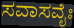
ಸವಾಸವೈಃ